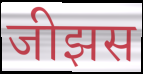
जीझस